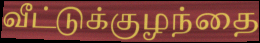
வீட்டுக்குழந்தை